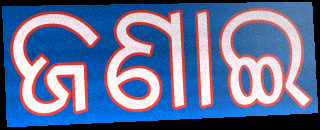
ଜଣାଇ